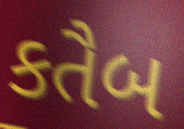
કતૈબ